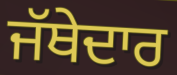
ਜੱਥੇਦਾਰ